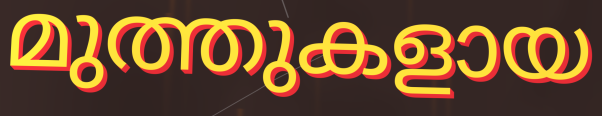
മുത്തുകളായ